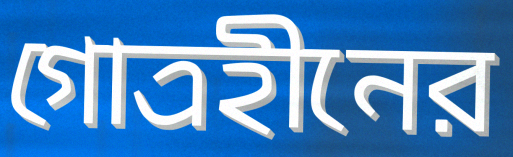
গোত্রহীনের